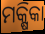
ମକ୍ଷିକା